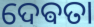
ଦେଵତା